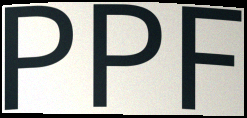
PPF